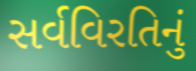
સર્વવિરતિનું